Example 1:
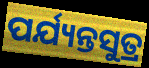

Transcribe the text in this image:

ପର୍ଯ୍ୟନ୍ତସୁତ୍ର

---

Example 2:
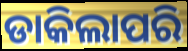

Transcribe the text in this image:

ଡାକିଲାପରି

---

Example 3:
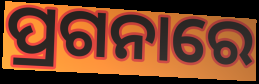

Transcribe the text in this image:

ପ୍ରଗନାରେ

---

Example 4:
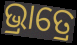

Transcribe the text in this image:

ଭ୍ରାତ୍ରେ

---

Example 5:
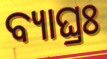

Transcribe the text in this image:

ବ୍ୟାଘ୍ରଃ